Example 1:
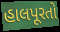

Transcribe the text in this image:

હાલપૂરતો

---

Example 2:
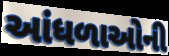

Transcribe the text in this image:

આંધળાઓની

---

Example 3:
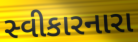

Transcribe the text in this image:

સ્વીકારનારા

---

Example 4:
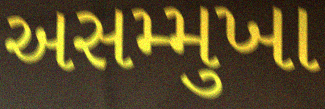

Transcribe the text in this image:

અસમ્મુખા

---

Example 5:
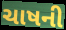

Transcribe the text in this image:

ચાષની